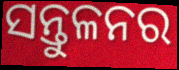
ସନ୍ତୁଳନର